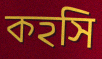
কহসি